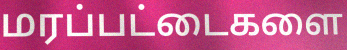
மரப்பட்டைகளை